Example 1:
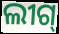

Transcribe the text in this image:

ଲୀଗ୍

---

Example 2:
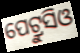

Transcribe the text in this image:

ପେଟ୍ରୁସିଓ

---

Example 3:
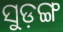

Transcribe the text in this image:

ସୁଡ଼ଙ୍ଗ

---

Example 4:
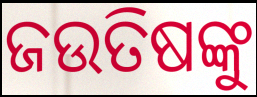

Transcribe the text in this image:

ଜଉତିଷଙ୍କୁ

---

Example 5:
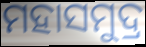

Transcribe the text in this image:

ମହାସମୁଦ୍ର